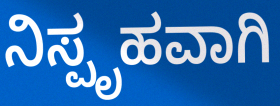
ನಿಸ್ಪೃಹವಾಗಿ